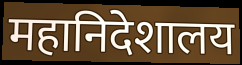
महानिदेशालय